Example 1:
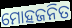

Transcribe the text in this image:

ମୋହଜନିତ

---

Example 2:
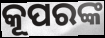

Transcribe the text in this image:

କୂପରଙ୍କ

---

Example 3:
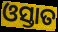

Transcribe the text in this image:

ଓସ୍ତାତ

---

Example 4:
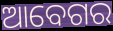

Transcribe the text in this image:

ଆବେଗର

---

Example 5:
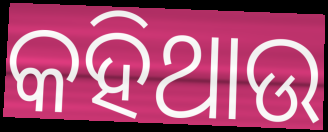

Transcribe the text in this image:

କହିଥାଉ